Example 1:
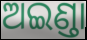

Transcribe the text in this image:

ଅଇଣ୍ଡା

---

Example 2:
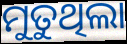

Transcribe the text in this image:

ମୁତୁଥିଲା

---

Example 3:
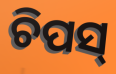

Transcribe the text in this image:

ଚିପସ୍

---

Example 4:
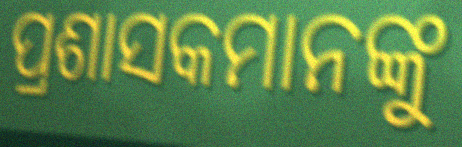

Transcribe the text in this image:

ପ୍ରଶାସକମାନଙ୍କୁ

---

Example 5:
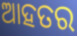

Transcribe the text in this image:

ଆହତର